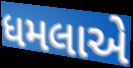
ધમલાએ